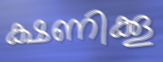
ക്ഷണിക്കൂ